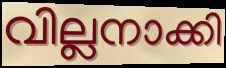
വില്ലനാക്കി